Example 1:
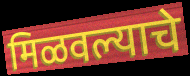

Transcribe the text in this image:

मिळवल्याचे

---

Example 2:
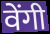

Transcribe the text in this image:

वेंगी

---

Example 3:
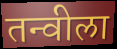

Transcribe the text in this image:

तन्वीला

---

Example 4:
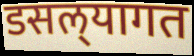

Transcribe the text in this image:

डसल्यागत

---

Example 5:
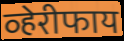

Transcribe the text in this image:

व्हेरीफाय